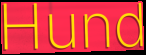
Hund